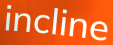
incline